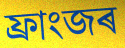
ফ্ৰাংজৰ